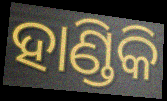
ହାଣ୍ଡିକି